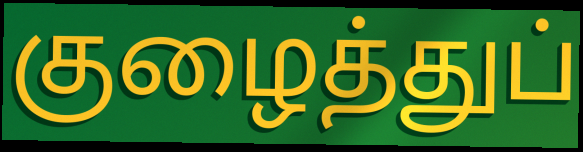
குழைத்துப்